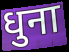
धुना